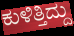
ಕುಳಿತ್ತಿದ್ದು